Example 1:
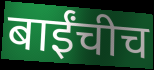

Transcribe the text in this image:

बाईंचीच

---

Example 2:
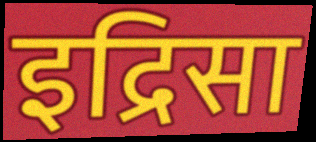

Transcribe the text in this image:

इद्रिसा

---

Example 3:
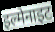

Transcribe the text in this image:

इल्मेनाइट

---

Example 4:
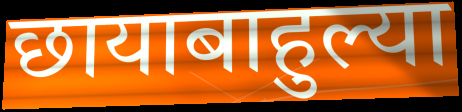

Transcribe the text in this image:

छायाबाहुल्या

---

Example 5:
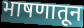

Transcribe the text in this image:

भाषणातून